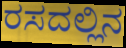
ರಸದಲ್ಲಿನ